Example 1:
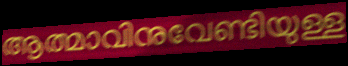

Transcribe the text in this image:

ആത്മാവിനുവേണ്ടിയുള്ള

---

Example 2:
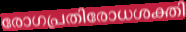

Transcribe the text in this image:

രോഗപ്രതിരോധശക്തി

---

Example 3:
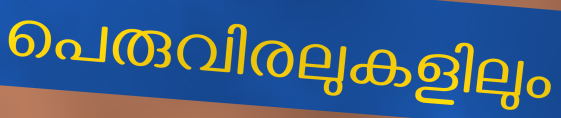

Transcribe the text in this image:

പെരുവിരലുകളിലും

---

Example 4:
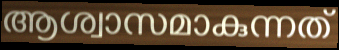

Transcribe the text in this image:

ആശ്വാസമാകുന്നത്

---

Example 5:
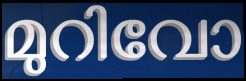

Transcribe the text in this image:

മുറിവോ